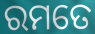
ରମତେ